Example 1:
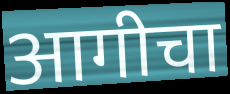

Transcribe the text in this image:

आगीचा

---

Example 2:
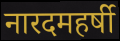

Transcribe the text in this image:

नारदमहर्षी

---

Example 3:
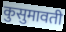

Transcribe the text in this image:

कुसुमावती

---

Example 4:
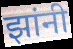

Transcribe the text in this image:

झांनी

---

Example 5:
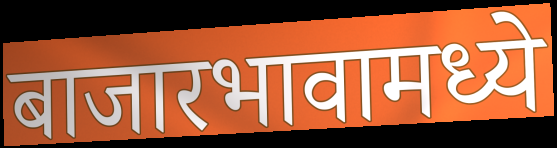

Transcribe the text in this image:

बाजारभावामध्ये